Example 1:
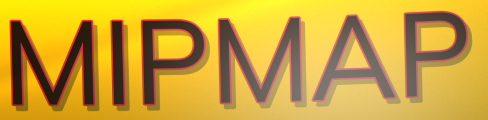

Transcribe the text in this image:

MIPMAP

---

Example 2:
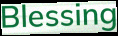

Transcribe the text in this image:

Blessing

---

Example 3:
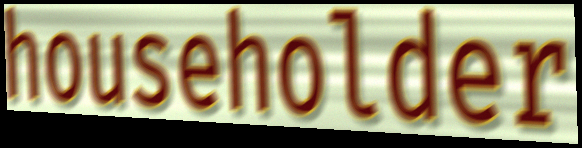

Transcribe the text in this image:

householder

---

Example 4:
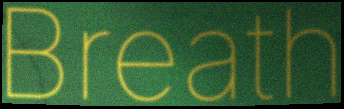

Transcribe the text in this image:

Breath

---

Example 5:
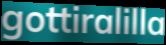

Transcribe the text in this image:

gottiralilla